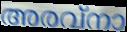
അരവ്നാ